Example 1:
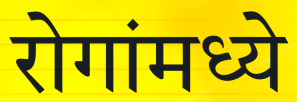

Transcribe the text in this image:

रोगांमध्ये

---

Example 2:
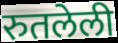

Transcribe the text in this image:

रुतलेली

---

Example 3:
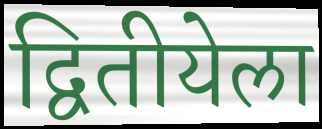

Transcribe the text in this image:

द्वितीयेला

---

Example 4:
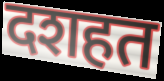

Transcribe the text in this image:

दशहत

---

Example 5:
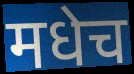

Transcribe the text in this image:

मधेच